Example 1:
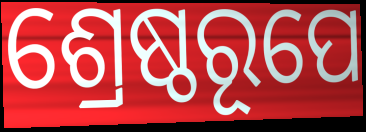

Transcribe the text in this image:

ଶ୍ରେଷ୍ଠରୂପେ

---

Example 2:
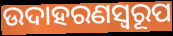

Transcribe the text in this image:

ଉଦାହରଣସ୍ୱରୂପ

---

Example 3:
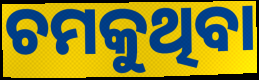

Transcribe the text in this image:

ଚମକୁଥିବା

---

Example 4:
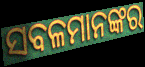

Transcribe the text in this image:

ସବଳମାନଙ୍କର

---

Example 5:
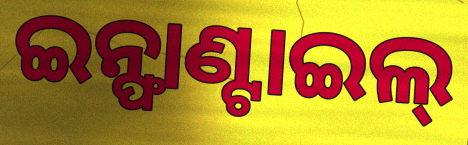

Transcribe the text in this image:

ଇନ୍ଫାଣ୍ଟାଇଲ୍